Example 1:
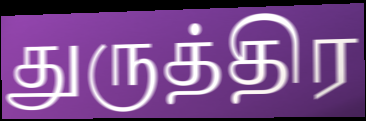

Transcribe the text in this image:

துருத்திர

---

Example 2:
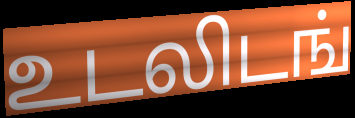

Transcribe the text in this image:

உடலிடங்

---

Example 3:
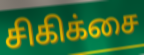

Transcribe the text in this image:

சிகிக்சை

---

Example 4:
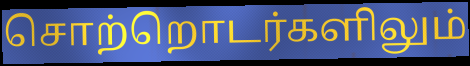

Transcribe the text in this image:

சொற்றொடர்களிலும்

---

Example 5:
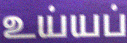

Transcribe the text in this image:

உய்யப்